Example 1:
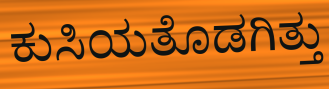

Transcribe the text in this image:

ಕುಸಿಯತೊಡಗಿತ್ತು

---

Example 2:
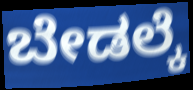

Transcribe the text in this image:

ಬೇಡಲ್ಕೆ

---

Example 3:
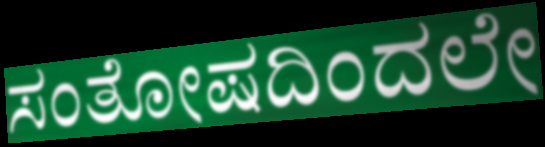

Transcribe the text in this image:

ಸಂತೋಷದಿಂದಲೇ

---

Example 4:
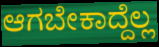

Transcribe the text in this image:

ಆಗಬೇಕಾದ್ದೆಲ್ಲ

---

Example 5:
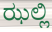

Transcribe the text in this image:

ಝಲ್ಲಿ